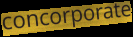
concorporate